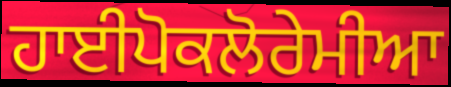
ਹਾਈਪੋਕਲੋਰੇਮੀਆ